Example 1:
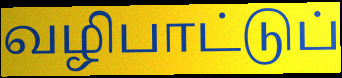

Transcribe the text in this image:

வழிபாட்டுப்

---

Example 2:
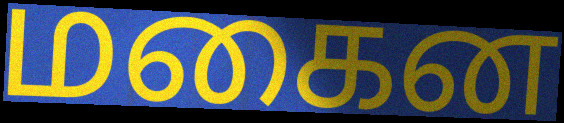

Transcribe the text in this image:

மகைன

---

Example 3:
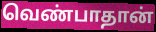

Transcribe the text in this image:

வெண்பாதான்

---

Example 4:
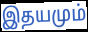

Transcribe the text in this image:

இதயமும்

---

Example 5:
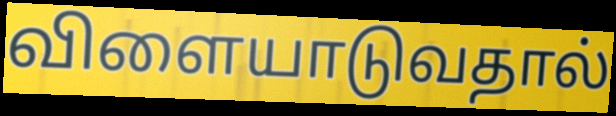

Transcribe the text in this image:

விளையாடுவதால்